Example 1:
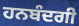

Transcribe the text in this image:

ਹਨਬੰਦਗੀ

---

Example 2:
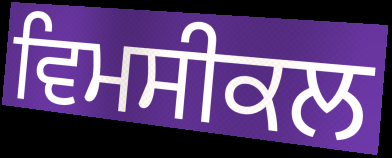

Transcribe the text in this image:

ਵਿਮਸੀਕਲ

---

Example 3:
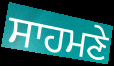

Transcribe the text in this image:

ਸਾਹਮਣੇ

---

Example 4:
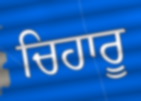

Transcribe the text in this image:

ਚਿਹਾਰੂ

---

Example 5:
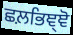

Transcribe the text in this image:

ਛਲ਼ਭਿਞ੍ਞੋ